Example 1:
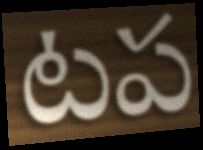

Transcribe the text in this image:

టప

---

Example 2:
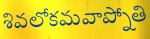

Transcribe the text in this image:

శివలోకమవాప్నోతి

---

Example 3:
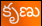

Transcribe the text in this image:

కృణు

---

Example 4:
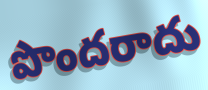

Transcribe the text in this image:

పొందరాదు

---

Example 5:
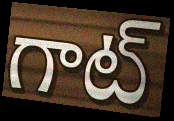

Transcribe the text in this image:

గాట్